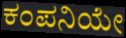
ಕಂಪನಿಯೇ